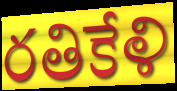
రతికేళి